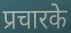
प्रचारके